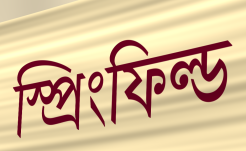
স্প্রিংফিল্ড